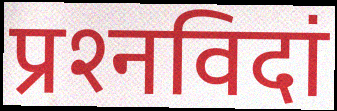
प्रश्नविदां